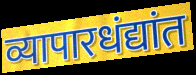
व्यापारधंद्यांत